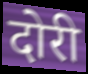
दोरी